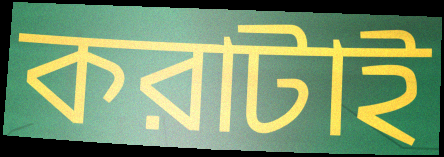
করাটাই